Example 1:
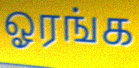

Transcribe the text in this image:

ஓரங்க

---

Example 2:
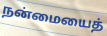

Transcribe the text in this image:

நன்மையைத்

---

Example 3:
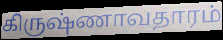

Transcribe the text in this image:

கிருஷ்ணாவதாரம்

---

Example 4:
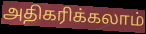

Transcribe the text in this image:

அதிகரிக்கலாம்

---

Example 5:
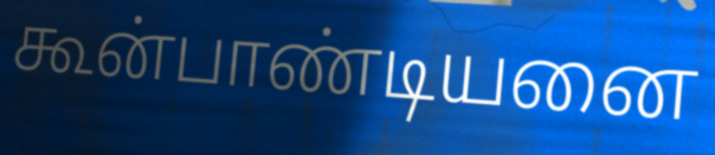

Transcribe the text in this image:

கூன்பாண்டியனை